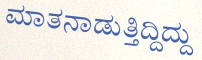
ಮಾತನಾಡುತ್ತಿದ್ದಿದ್ದು